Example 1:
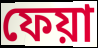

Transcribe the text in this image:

ফেয়া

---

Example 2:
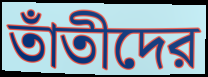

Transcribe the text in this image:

তাঁতীদের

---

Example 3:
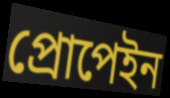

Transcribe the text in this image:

প্রোপেইন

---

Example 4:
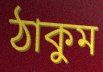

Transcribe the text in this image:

ঠাকুম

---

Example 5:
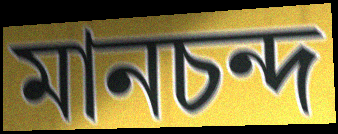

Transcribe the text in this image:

মানচন্দ